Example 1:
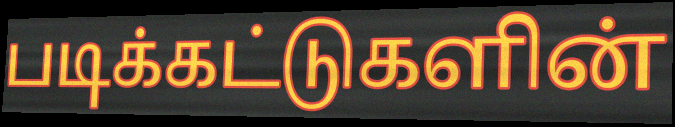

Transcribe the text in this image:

படிக்கட்டுகளின்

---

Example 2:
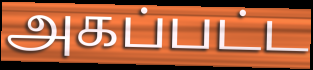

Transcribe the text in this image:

அகப்பட்ட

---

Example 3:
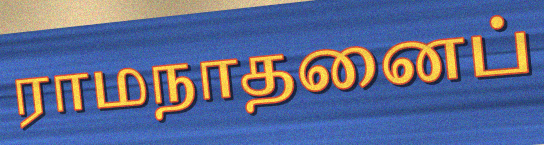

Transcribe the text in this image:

ராமநாதனைப்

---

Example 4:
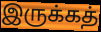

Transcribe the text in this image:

இருக்கத்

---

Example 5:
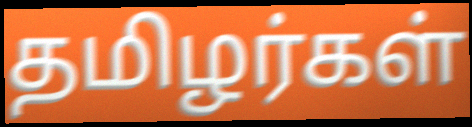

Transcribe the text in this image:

தமிழர்கள்